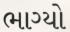
ભાગ્યો